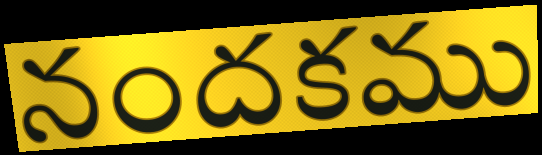
నందకము